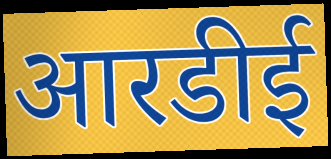
आरडीई